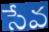
సేవ